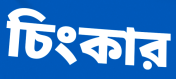
চিংকার